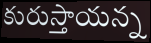
కురుస్తాయన్న